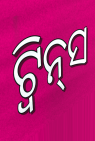
ଟ୍ବିନ୍‌ସ